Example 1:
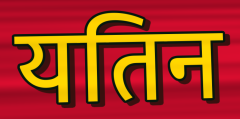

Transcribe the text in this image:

यतिन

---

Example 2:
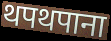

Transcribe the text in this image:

थपथपाना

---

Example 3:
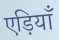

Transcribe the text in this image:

एड़ियाँ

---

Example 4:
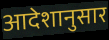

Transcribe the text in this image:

आदेशानुसार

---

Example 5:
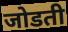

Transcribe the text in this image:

जोडती